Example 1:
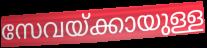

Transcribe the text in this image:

സേവയ്ക്കായുള്ള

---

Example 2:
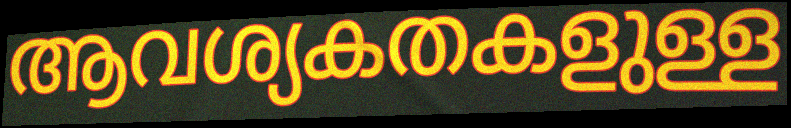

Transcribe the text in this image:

ആവശ്യകതകളുള്ള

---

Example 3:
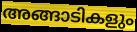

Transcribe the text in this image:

അങ്ങാടികളും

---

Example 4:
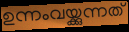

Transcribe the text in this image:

ഉന്നംവയ്ക്കുന്നത്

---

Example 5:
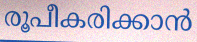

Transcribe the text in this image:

രൂപീകരിക്കാൻ